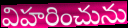
విహరించును